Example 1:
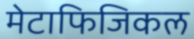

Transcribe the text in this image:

मेटाफिजिकल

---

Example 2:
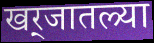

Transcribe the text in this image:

खर्जातल्या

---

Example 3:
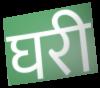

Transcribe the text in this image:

घरी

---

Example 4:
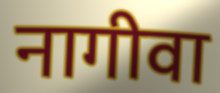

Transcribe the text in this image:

नागीवा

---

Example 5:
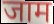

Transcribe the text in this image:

जाम